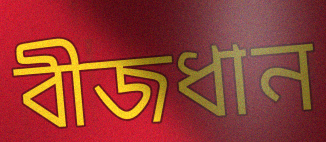
বীজধান